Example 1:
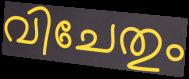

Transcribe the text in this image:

വിചേതും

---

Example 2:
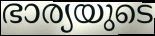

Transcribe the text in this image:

ഭാര്യയുടെ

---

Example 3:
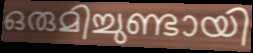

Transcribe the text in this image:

ഒരുമിച്ചുണ്ടായി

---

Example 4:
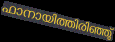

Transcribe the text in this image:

ഫാനായിത്തിരിഞ്ഞു്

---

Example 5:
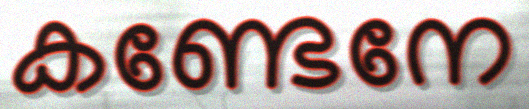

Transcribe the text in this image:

കണ്ടേനേ